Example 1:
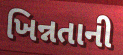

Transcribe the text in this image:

ખિન્નતાની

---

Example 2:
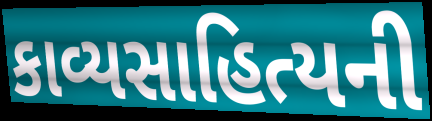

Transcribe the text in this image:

કાવ્યસાહિત્યની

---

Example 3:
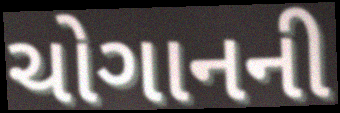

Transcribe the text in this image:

ચોગાનની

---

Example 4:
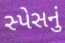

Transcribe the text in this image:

સ્પેસનું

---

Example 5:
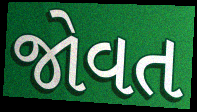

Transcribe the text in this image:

જોવત